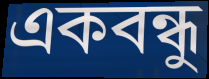
একবন্ধু